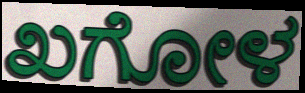
ಖಗೋಳ